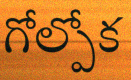
గోల్పోక